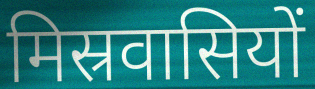
मिस्रवासियों